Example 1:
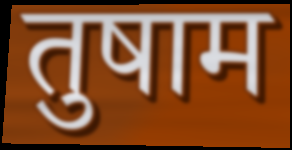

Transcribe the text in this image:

तुषाम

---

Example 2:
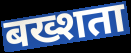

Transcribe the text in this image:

बख्शता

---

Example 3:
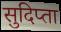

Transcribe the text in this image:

सुदिप्ता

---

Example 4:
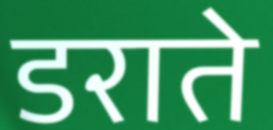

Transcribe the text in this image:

डराते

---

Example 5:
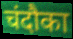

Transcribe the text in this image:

चंदौका